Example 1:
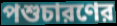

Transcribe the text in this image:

পশুচারণের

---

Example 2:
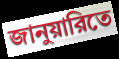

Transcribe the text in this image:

জানুয়ারিতে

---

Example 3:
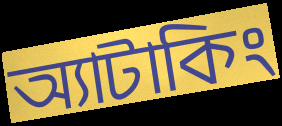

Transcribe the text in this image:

অ্যাটাকিং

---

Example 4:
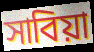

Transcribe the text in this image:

সাবিয়া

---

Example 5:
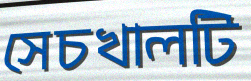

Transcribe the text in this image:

সেচখালটি